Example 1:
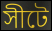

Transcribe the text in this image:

সীটে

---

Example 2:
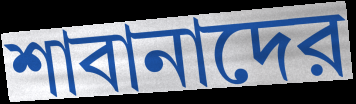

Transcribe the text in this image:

শাবানাদের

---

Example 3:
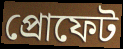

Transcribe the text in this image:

প্রোফেট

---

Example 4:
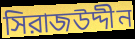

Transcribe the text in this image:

সিরাজউদ্দীন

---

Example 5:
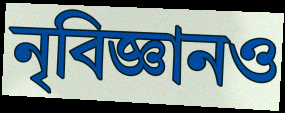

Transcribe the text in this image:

নৃবিজ্ঞানও